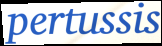
pertussis